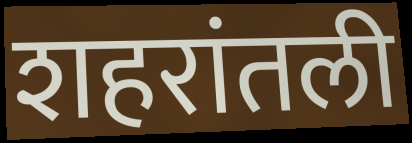
शहरांतली